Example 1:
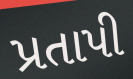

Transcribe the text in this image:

પ્રતાપી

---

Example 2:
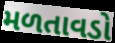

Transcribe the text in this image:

મળતાવડો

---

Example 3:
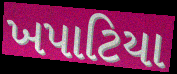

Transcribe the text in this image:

ખપાટિયા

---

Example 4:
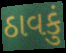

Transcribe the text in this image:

ઠાવકું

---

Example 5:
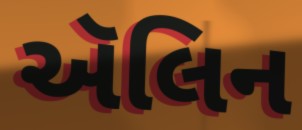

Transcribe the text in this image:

ઍલિન